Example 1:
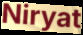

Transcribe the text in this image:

Niryat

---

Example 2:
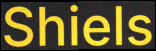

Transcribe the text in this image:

Shiels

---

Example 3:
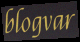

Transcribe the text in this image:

blogvar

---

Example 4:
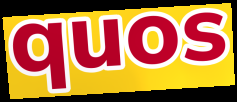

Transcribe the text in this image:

quos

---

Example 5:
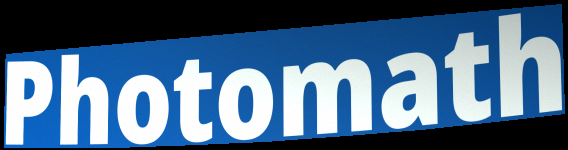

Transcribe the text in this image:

Photomath